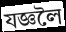
যজ্ঞলৈ